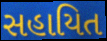
સહાયિત